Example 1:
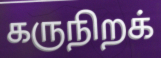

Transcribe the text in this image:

கருநிறக்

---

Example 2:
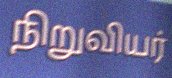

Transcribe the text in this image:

நிறுவியர்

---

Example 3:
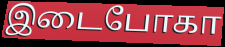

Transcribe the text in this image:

இடைபோகா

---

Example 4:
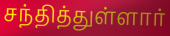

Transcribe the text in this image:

சந்தித்துள்ளார்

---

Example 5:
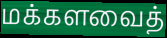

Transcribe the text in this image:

மக்களவைத்